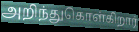
அறிந்துகொள்கிறார்